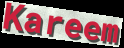
Kareem